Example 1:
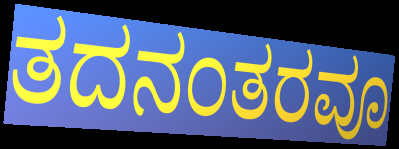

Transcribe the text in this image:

ತದನಂತರವೂ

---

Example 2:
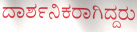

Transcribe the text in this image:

ದಾರ್ಶನಿಕರಾಗಿದ್ದರು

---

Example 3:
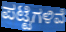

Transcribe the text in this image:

ಪಟ್ಟೆಗಳಿವೆ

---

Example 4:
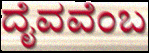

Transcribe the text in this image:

ದೈವವೆಂಬ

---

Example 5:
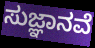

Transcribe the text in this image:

ಸುಜ್ಞಾನವೆ